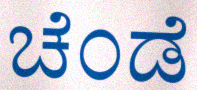
ಚೆಂಡೆ